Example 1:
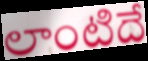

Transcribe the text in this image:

లాంటిదే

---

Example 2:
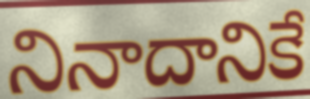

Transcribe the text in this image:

నినాదానికే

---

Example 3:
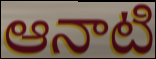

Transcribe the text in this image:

ఆనాటి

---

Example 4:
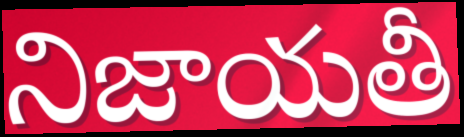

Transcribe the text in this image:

నిజాయతీ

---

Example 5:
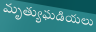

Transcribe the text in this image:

మృత్యుఘడియలు